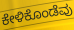
ಕೇಳಿಕೊಂಡೆವು